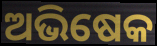
ଅଭିଷେକ